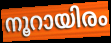
നൂറായിരം